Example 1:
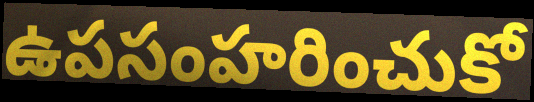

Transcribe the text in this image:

ఉపసంహరించుకో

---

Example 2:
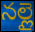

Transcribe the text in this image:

నల్లై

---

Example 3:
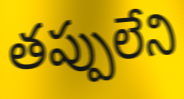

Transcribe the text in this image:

తప్పులేని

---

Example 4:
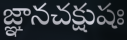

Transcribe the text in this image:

జ్ఞానచక్షుషః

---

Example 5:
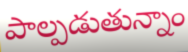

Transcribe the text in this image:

పాల్పడుతున్నాం